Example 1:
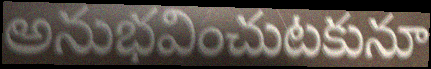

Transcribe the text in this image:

అనుభవించుటకునూ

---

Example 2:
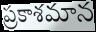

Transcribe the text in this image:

ప్రకాశమాన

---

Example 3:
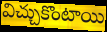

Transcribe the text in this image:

విచ్చుకొంటాయి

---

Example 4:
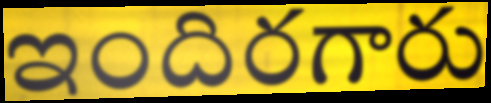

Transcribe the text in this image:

ఇందిరగారు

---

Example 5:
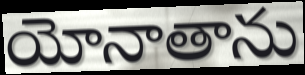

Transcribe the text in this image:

యోనాతాను